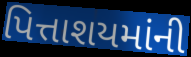
પિત્તાશયમાંની